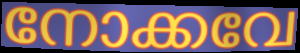
നോക്കവേ